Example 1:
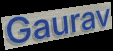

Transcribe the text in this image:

Gaurav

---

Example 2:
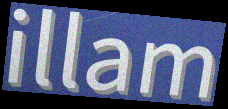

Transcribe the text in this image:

illam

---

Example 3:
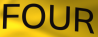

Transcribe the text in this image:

FOUR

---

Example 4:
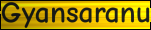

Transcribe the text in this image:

Gyansaranu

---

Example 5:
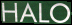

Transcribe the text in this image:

HALO